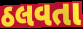
ઠલવતા